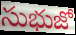
సుభుజో